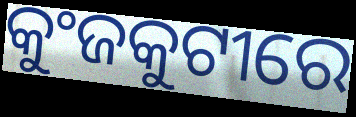
କୁଂଜକୁଟୀରେ